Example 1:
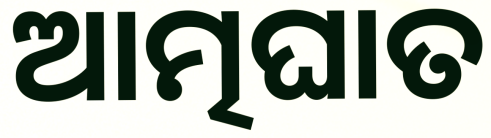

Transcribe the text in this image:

ଆତ୍ମଘାତ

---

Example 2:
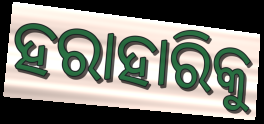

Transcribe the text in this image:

ହରାହାରିକୁ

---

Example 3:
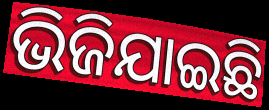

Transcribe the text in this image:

ଭିଜିଯାଇଛି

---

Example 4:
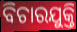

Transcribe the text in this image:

ବିଚାରଯୁକ୍ତି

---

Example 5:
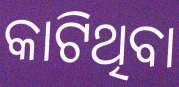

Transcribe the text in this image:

କାଟିଥିବା